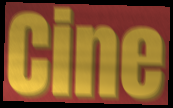
Cine